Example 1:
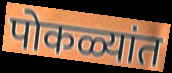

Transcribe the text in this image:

पोकळ्यांत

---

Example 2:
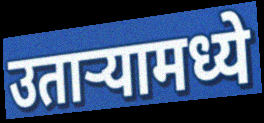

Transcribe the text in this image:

उताऱ्यामध्ये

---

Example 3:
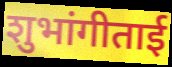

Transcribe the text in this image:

शुभांगीताई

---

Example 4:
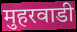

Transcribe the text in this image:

मुहरवाडी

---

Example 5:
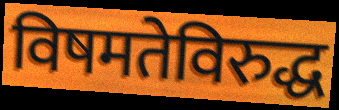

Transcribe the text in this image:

विषमतेविरुद्ध